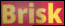
Brisk